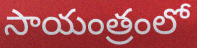
సాయంత్రంలో